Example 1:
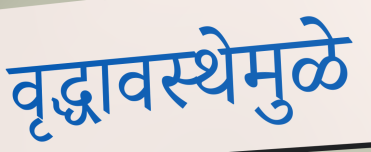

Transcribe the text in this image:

वृद्धावस्थेमुळे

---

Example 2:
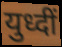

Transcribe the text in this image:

युध्दीं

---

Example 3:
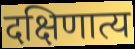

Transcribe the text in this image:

दक्षिणात्य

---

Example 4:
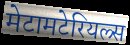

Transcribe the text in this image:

मेटामटेरियल्स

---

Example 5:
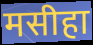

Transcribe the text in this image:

मसीहा